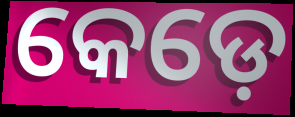
କେଡ଼େ